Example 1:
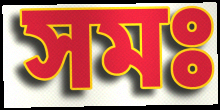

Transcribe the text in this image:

সমঃ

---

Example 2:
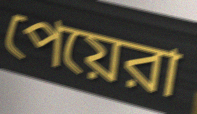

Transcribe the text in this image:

পেয়েরা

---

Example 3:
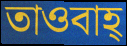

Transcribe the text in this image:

তাওবাহ্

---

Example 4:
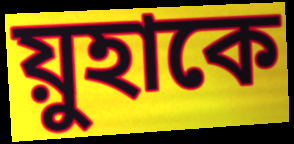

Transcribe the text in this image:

য়ুহাকে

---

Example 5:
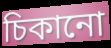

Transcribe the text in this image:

চিকানো